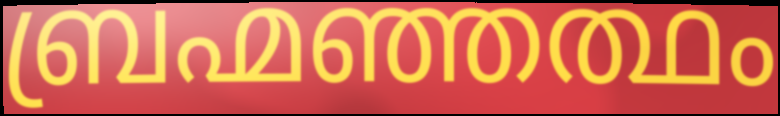
ബ്രഹ്മഞ്ഞത്ഥം